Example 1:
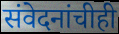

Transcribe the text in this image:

संवेदनांचीही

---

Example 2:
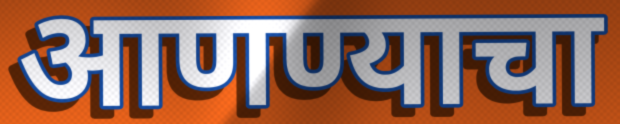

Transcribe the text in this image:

आणण्याचा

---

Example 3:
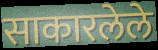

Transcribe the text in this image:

साकारलेले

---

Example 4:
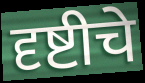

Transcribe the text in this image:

दृष्टीचे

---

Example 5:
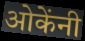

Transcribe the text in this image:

ओकेंनी